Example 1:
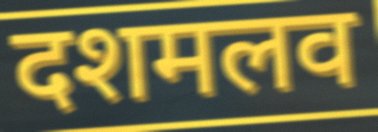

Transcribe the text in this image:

दशमलव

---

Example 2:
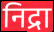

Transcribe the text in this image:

निद्रा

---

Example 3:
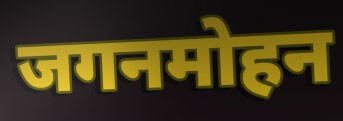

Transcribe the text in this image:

जगनमोहन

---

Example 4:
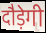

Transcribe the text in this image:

दौड़ेगी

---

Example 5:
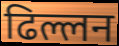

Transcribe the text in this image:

ढिल्लन